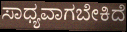
ಸಾಧ್ಯವಾಗಬೇಕಿದೆ